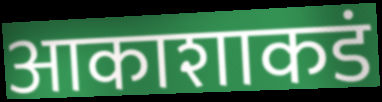
आकाशाकडं